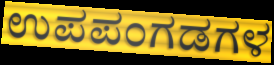
ಉಪಪಂಗಡಗಳ